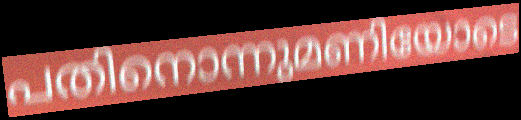
പതിനൊന്നുമണിയോടെ